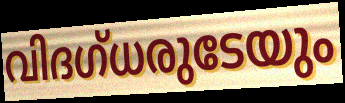
വിദഗ്ധരുടേയും